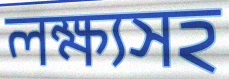
লক্ষ্যসহ